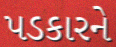
પડકારને